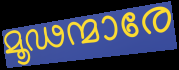
മൂഢന്മാരേ